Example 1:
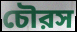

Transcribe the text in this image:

চৌরস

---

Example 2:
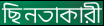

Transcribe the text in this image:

ছিনতাকারী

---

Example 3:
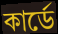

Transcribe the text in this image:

কার্ডে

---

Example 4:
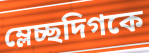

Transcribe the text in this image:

ম্লেচ্ছদিগকে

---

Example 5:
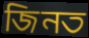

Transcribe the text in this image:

জিনত